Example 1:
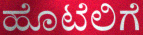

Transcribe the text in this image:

ಹೊಟೆಲಿಗೆ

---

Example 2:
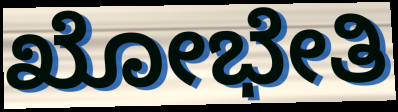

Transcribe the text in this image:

ಖೋಭೇತಿ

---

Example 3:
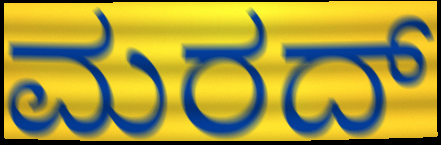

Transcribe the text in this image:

ಮರದ್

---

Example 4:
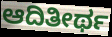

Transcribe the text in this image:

ಆದಿತೀರ್ಥ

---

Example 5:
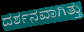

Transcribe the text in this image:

ದರ್ಶನವಾಗಿತ್ತು